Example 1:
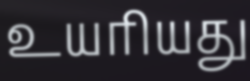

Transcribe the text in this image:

உயரியது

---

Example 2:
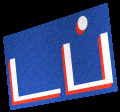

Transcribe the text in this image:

டப்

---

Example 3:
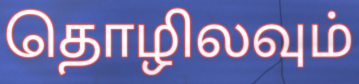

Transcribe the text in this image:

தொழிலவும்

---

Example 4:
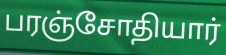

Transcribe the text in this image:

பரஞ்சோதியார்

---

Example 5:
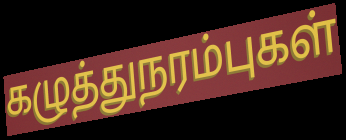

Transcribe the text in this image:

கழுத்துநரம்புகள்